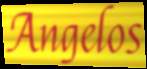
Angelos